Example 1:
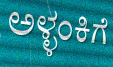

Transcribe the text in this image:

ಅಳ್ಳಂಕಿಗೆ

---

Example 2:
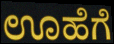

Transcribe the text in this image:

ಊಹೆಗೆ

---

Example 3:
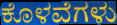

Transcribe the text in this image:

ಕೊಳವೆಗಳು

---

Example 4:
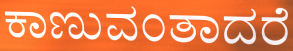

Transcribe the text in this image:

ಕಾಣುವಂತಾದರೆ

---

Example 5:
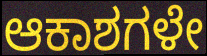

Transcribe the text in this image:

ಆಕಾಶಗಳೇ